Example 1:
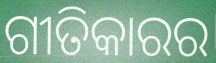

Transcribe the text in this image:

ଗୀତିକାରର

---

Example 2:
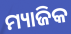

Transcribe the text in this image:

ମ୍ୟାଜିକ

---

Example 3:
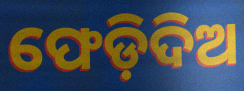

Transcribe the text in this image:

ଫେଡ଼ିଦିଅ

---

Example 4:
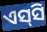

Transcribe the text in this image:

ଏସ୍‍ସି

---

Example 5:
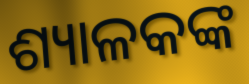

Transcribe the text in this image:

ଶ୍ୟାଳକଙ୍କ